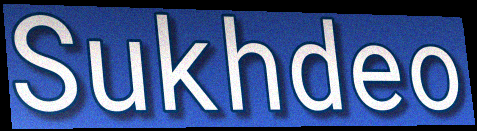
Sukhdeo